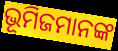
ଭୂମିଜମାନଙ୍କ